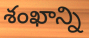
శంఖాన్ని